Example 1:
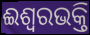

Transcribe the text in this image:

ଈଶ୍ୱରଭକ୍ତି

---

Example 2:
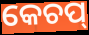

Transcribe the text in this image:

କେଚପ୍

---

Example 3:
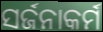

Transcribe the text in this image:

ସର୍ଜନାକର୍ମ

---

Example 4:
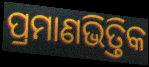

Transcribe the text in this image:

ପ୍ରମାଣଭିତ୍ତିକ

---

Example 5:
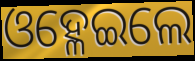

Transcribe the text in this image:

ଓହ୍ଳେଇଲେ